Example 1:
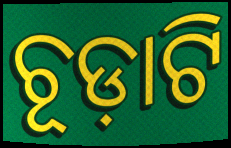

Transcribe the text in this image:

ଚୂଡ଼ାଟି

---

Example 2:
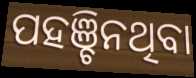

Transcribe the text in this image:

ପହଞ୍ଚିନଥିବା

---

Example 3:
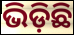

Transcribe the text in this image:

ଭିଡ଼ିଛି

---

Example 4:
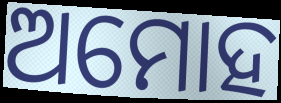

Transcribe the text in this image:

ଅମୋହ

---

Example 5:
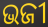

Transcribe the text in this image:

ଭଜୀ